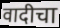
वादीचा